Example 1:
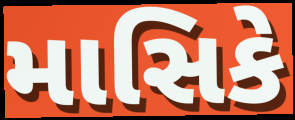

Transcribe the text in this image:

માસિકે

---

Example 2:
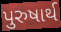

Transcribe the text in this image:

પુરુષાર્થ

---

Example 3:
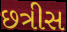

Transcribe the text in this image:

છત્રીસ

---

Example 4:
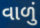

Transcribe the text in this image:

વાળું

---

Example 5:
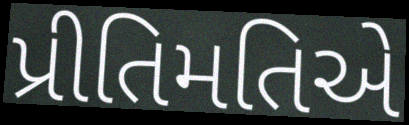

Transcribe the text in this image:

પ્રીતિમતિએ